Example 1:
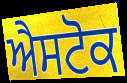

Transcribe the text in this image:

ਐਸਟੋਕ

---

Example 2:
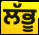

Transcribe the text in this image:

ਲੱਭੂ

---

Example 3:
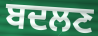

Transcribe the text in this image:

ਬਦਲਣ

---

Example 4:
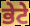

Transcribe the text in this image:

ਭੇਟੇ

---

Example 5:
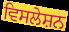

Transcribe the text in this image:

ਵਿਸਲੇਸ਼ਨ